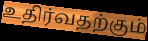
உதிர்வதற்கும்